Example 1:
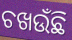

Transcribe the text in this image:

ଚଖଉଁଛି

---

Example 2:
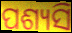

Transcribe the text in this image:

ପଶ୍ୟସି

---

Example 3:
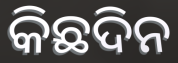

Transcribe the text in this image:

କିଛଦିନ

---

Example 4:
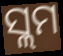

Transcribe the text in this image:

ସ୍ଲମ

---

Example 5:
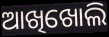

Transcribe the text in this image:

ଆଖିଖୋଲି